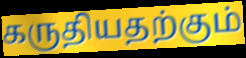
கருதியதற்கும்